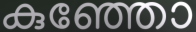
കുഞ്ഞോ